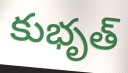
కుభృత్